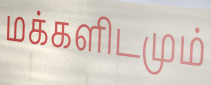
மக்களிடமும்